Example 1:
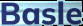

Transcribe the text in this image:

Basle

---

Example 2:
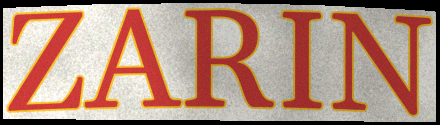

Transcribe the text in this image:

ZARIN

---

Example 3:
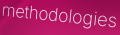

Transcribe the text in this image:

methodologies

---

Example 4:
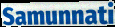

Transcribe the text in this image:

Samunnati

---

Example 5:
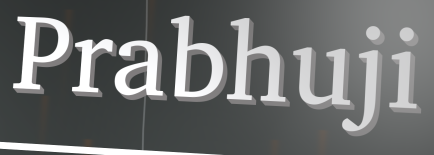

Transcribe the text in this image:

Prabhuji